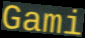
Gami